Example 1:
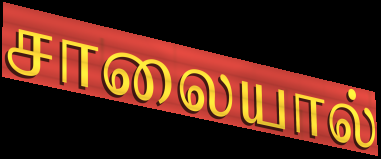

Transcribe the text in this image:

சாலையால்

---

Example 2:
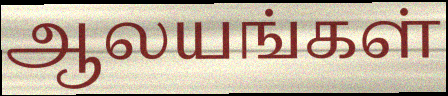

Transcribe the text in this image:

ஆலயங்கள்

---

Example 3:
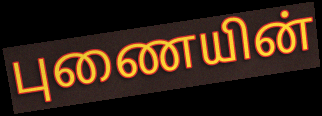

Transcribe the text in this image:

புணையின்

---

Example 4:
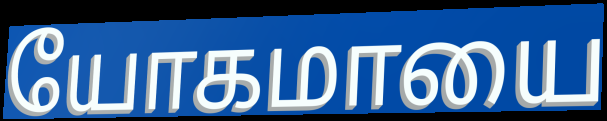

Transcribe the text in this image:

யோகமாயை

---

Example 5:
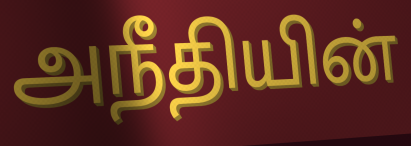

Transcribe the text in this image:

அநீதியின்